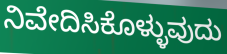
ನಿವೇದಿಸಿಕೊಳ್ಳುವುದು